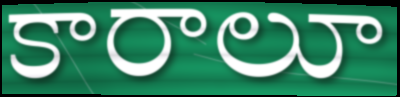
కారాలూ